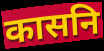
कासनि